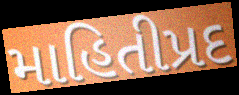
માહિતીપ્રદ